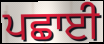
ਪਛਾਈ